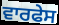
ਵਾਰਫੇਸ